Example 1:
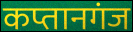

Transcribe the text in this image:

कप्तानगंज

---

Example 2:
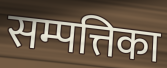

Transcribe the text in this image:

सम्पत्तिका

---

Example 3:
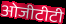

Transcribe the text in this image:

ओजीटीटी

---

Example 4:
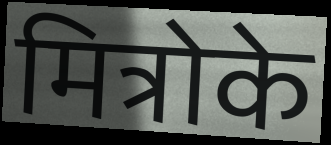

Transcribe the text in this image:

मित्रोके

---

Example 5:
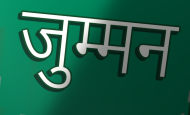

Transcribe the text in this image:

जुम्मन